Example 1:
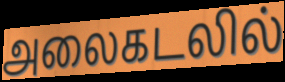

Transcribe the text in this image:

அலைகடலில்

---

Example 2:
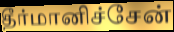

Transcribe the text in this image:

தீர்மானிச்சேன்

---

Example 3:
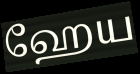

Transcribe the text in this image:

ஹேய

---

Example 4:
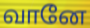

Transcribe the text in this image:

வானே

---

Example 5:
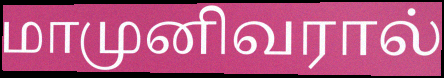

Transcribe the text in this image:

மாமுனிவரால்